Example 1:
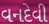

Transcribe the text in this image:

વનદેવી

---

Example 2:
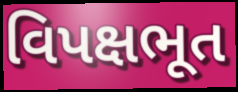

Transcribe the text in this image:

વિપક્ષભૂત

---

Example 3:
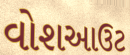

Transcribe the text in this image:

વોશઆઉટ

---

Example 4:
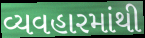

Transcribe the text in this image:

વ્યવહારમાંથી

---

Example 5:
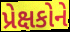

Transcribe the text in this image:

પ્રેક્ષકોને